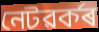
নেটৱৰ্কৰ